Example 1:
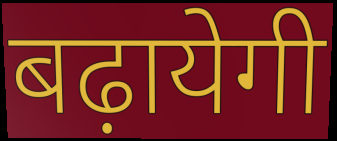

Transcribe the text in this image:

बढ़ायेगी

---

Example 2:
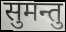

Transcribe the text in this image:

सुमन्तु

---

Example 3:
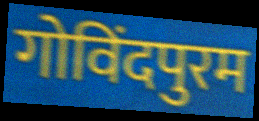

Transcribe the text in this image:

गोविंदपुरम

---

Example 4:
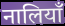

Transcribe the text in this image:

नालियाँ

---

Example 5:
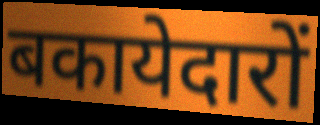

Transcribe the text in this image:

बकायेदारों